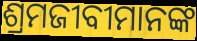
ଶ୍ରମଜୀବୀମାନଙ୍କ